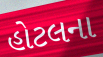
હોટલના